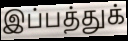
இப்பத்துக்